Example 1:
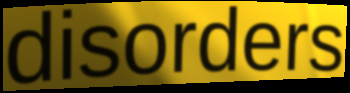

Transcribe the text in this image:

disorders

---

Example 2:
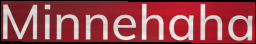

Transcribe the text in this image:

Minnehaha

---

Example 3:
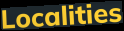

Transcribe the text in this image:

Localities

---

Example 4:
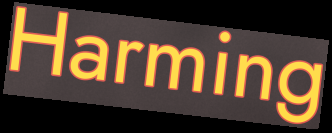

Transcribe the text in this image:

Harming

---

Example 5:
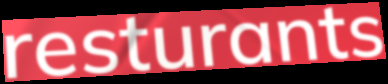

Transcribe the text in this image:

resturants